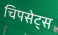
चिपसेट्स